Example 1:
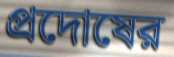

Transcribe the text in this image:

প্রদোষের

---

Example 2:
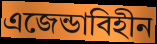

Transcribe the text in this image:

এজেন্ডাবিহীন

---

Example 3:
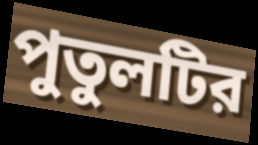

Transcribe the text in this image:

পুতুলটির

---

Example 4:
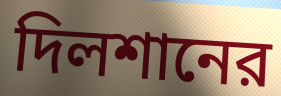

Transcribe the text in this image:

দিলশানের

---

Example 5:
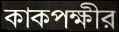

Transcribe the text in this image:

কাকপক্ষীর